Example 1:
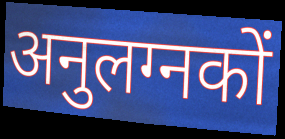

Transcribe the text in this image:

अनुलग्नकों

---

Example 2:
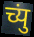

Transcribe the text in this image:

च्युं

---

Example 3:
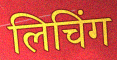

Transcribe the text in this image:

लिचिंग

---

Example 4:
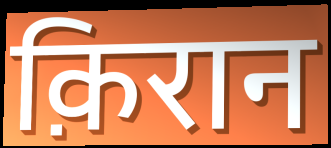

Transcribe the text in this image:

क़िरान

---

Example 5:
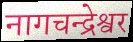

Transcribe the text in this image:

नागचन्द्रेश्वर